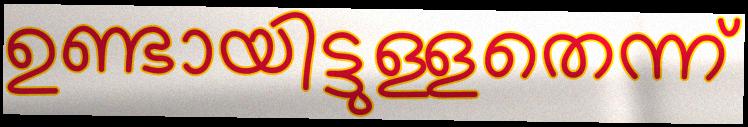
ഉണ്ടായിട്ടുള്ളതെന്ന്